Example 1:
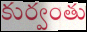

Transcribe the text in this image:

కుర్వంతు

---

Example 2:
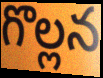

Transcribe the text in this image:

గొల్లన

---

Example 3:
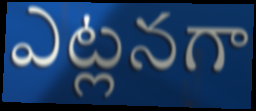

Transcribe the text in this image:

ఎట్లనగా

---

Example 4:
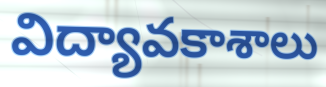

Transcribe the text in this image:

విద్యావకాశాలు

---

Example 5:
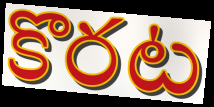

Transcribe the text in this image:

కొరట